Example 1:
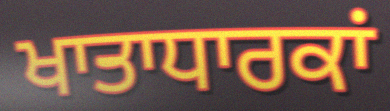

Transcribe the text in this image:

ਖਾਤਾਧਾਰਕਾਂ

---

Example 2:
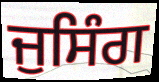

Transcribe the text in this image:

ਜੁਸਿੰਗ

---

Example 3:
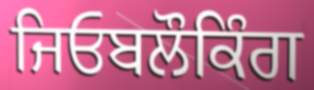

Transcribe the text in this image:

ਜਿਓਬਲੌਕਿੰਗ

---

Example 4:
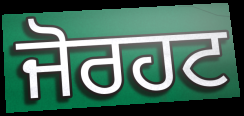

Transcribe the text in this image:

ਜੋਰਹਟ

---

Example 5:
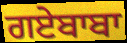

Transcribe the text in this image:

ਗਏਬਾਬਾ